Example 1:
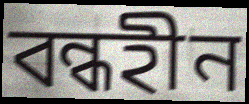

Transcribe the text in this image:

বন্ধহীন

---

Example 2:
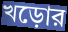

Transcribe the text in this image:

খড়োর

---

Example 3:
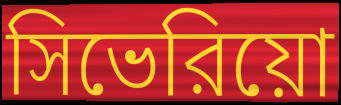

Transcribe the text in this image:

সিভেরিয়ো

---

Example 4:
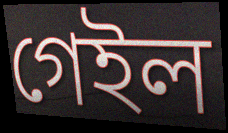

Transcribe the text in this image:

গেইল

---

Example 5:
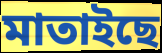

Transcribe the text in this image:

মাতাইছে